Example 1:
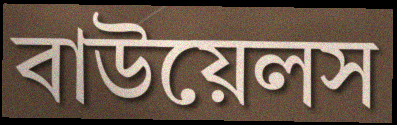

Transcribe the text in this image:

বাউয়েলস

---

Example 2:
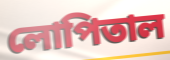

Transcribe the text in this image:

লোপিতাল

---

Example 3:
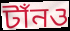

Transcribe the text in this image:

টাঁনও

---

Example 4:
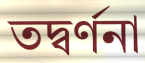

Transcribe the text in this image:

তদ্বর্ণনা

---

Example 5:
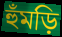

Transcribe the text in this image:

হুঁমড়ি